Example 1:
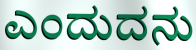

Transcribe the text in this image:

ಎಂದುದನು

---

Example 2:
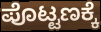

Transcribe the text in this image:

ಪೊಟ್ಟಣಕ್ಕೆ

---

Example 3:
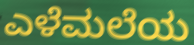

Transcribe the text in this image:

ಎಳೆಮಲೆಯ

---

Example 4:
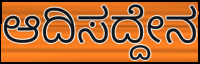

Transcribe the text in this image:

ಆದಿಸದ್ದೇನ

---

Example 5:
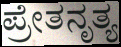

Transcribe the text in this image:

ಪ್ರೇತನೃತ್ಯ